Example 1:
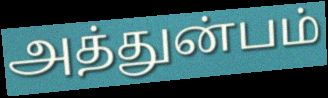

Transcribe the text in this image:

அத்துன்பம்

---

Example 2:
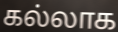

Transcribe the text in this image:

கல்லாக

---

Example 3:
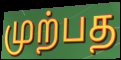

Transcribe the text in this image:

முற்பத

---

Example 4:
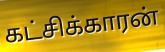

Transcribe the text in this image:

கட்சிக்காரன்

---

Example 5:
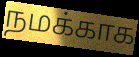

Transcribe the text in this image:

நமக்காக